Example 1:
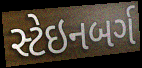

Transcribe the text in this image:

સ્ટેઇનબર્ગ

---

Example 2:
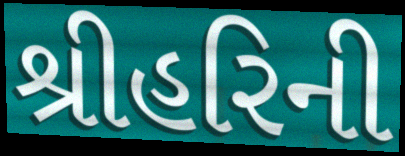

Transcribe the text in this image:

શ્રીહરિની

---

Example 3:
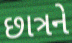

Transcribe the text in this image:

છાત્રને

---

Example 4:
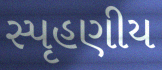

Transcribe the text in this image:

સ્પૃહણીય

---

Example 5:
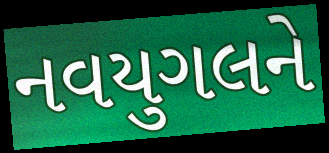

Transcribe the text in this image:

નવયુગલને